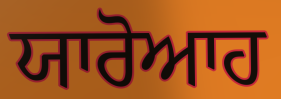
ਯਾਰੋਆਹ